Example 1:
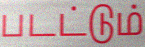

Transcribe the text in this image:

படட்டும்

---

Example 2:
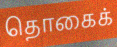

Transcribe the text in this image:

தொகைக்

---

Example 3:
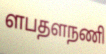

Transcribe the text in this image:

ளபதளநணி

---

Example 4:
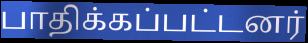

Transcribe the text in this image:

பாதிக்கப்பட்டனர்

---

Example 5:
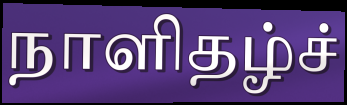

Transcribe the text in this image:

நாளிதழ்ச்